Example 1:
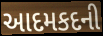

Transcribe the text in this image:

આદમકદની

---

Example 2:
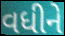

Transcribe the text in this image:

વધીને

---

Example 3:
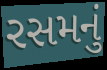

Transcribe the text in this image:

રસમનું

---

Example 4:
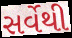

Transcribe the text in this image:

સર્વેથી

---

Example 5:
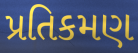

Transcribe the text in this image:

પ્રતિકમણ